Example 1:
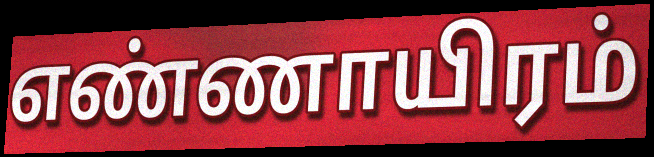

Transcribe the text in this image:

எண்ணாயிரம்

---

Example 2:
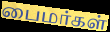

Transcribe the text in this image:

பைமர்கள்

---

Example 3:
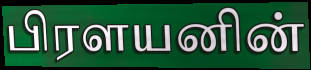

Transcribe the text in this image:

பிரளயனின்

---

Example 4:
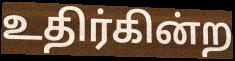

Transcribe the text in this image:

உதிர்கின்ற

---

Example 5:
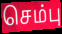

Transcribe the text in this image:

செம்பு